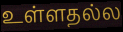
உள்ளதல்ல